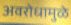
अवरोधामुळे